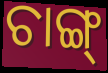
ଚାଙ୍ଗ୍